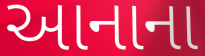
આનાના